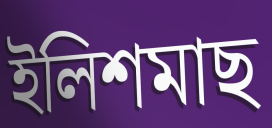
ইলিশমাছ